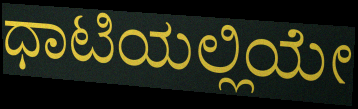
ಧಾಟಿಯಲ್ಲಿಯೇ